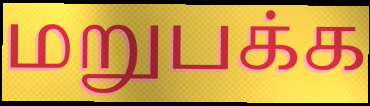
மறுபக்க